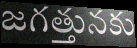
జగత్తునకు